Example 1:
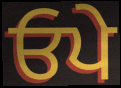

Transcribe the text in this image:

ਓਪੇ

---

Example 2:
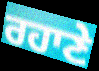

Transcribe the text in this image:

ਰਹਾਣੇ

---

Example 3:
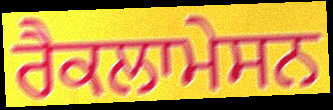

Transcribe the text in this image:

ਰੈਕਲਾਮੇਸਨ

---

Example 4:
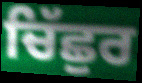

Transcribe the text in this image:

ਚਿੱਛੁਰ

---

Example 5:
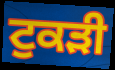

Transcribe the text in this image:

ਟੁਕਡ਼ੀ